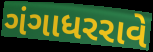
ગંગાધરરાવે